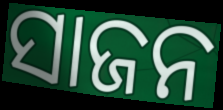
ସାଜନ